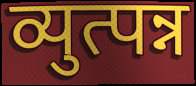
व्युत्पन्न